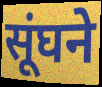
सूंघने